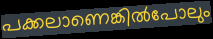
പക്കലാണെങ്കിൽപോലും